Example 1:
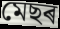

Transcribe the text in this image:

মেছৰ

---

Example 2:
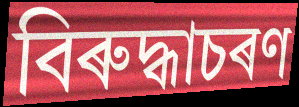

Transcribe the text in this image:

বিৰুদ্ধাচৰণ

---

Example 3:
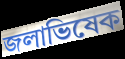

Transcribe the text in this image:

জলাভিষেক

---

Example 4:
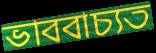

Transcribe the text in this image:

ভাববাচ্যত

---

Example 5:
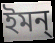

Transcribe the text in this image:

ইমন্